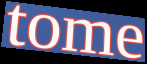
tome